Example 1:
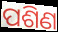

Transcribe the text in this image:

ପଶିଣ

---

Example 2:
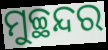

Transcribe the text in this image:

ମୁଚ୍ଛନ୍ଦର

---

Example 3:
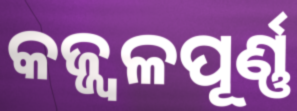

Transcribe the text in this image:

କଜ୍ଜ୍ୱଳପୂର୍ଣ୍ଣ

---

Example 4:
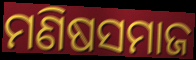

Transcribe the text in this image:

ମଣିଷସମାଜ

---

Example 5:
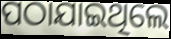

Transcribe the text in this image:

ପଠାଯାଇଥିଲେ